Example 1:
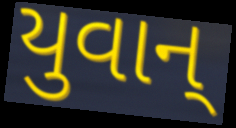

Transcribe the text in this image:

યુવાન્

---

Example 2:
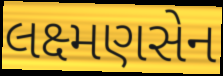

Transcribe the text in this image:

લક્ષ્મણસેન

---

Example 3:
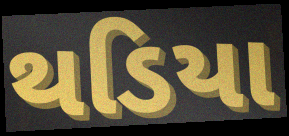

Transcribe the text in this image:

થડિયા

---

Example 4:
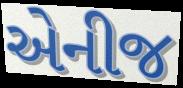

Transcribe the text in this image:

એનીજ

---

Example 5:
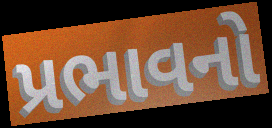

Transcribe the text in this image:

પ્રભાવનો